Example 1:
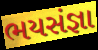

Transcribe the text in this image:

ભયસંજ્ઞા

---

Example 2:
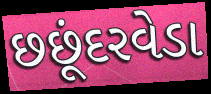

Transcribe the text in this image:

છછૂંદરવેડા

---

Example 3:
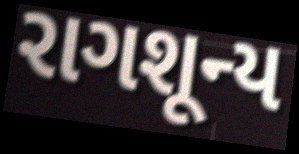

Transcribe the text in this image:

રાગશૂન્ય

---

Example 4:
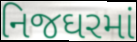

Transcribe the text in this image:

નિજઘરમાં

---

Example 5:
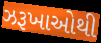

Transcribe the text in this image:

ઝરૂખાઓથી